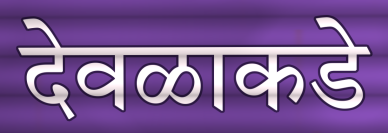
देवळाकडे